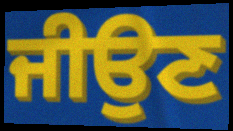
ਜੀਉਣ